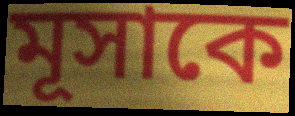
মূসাকে